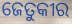
ଜେତୁକୀର